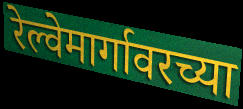
रेल्वेमार्गावरच्या